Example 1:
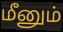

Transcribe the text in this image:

மீனும்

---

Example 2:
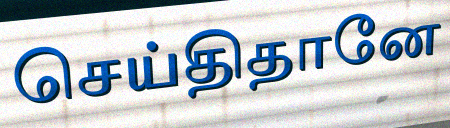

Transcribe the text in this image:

செய்திதானே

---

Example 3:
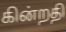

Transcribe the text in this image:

கின்றதி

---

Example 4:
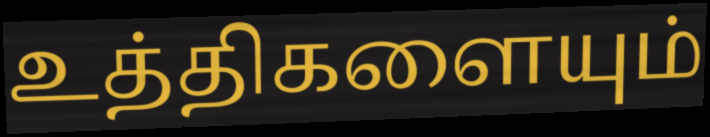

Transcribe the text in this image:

உத்திகளையும்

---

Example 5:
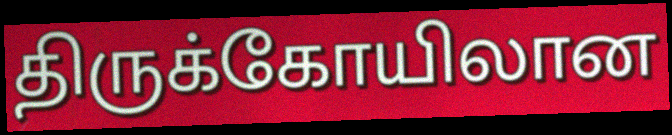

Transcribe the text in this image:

திருக்கோயிலான